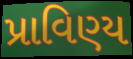
પ્રાવિણ્ય